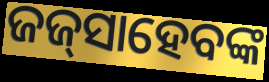
ଜଜ୍‍ସାହେବଙ୍କ